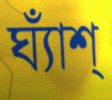
ঘ্যাঁশ্